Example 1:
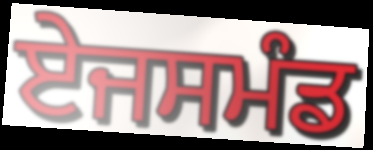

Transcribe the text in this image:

ਏਜਸਮੰਡ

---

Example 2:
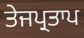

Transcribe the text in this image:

ਤੇਜਪ੍ਰਤਾਪ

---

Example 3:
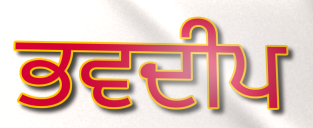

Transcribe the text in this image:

ਭਵਦੀਪ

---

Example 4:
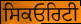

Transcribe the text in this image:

ਸਿਕਓਰਿਟੀ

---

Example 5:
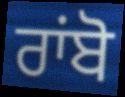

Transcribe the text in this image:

ਰਾਂਬੋ